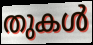
തുകൾ